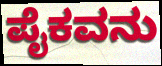
ಪೈಕವನು